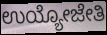
ಉಯ್ಯೋಜೇತಿ